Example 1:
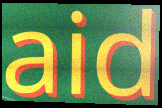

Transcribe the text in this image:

aid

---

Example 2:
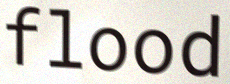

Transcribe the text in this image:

flood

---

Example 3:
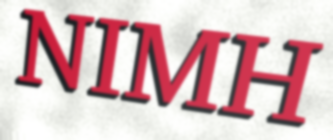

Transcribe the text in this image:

NIMH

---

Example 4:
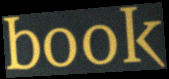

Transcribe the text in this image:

book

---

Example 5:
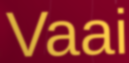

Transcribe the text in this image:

Vaai